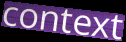
context